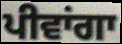
ਪੀਵਾਂਗਾ